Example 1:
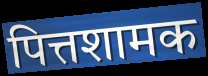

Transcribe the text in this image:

पित्तशामक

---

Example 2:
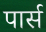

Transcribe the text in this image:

पार्स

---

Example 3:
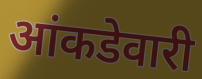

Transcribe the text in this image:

आंकडेवारी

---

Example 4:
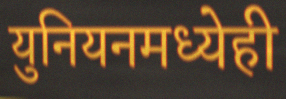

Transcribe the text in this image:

युनियनमध्येही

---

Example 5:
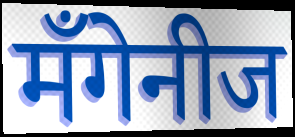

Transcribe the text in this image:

मँगेनीज